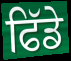
ਫਿੱਡੇ